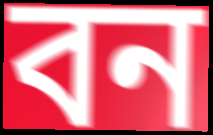
বন